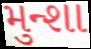
મુન્શા